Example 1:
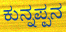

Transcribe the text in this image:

ಕುನ್ನಪ್ಪನ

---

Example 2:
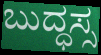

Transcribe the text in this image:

ಬುದ್ಧಸ್ಸ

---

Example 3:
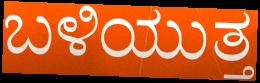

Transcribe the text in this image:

ಬಳಿಯುತ್ತ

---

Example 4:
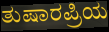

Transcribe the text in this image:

ತುಷಾರಪ್ರಿಯ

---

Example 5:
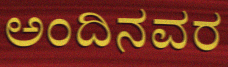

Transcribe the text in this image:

ಅಂದಿನವರ